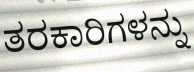
ತರಕಾರಿಗಳನ್ನು